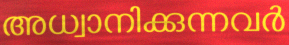
അധ്വാനിക്കുന്നവർ